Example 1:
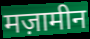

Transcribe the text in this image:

मज़ामीन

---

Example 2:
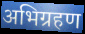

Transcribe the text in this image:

अभिग्रहण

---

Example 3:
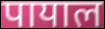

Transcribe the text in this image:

पायाल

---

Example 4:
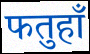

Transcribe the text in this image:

फतुहाँ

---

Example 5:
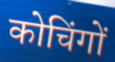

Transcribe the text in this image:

कोचिंगों